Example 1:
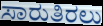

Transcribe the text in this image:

ಸಾರುತಿರಲು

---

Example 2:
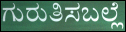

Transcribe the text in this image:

ಗುರುತಿಸಬಲ್ಲೆ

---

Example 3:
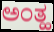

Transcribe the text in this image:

ಅಂತ್ಹ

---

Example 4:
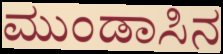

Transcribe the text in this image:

ಮುಂಡಾಸಿನ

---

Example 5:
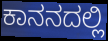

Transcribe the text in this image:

ಕಾನನದಲ್ಲಿ